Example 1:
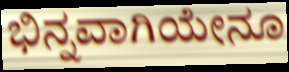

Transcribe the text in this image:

ಭಿನ್ನವಾಗಿಯೇನೂ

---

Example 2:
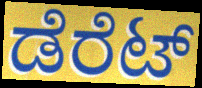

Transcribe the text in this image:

ಡೆರೆಟ್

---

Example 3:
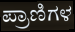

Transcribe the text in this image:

ಪ್ರಾಣಿಗಳ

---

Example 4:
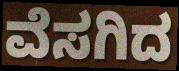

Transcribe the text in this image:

ವೆಸಗಿದ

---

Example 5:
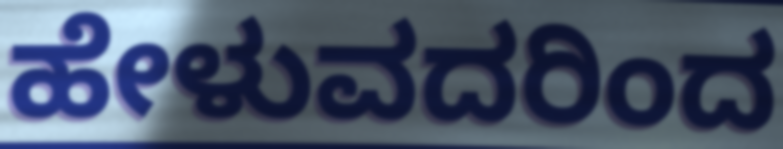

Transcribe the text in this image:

ಹೇಳುವದರಿಂದ